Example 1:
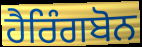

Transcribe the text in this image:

ਹੈਰਿੰਗਬੋਨ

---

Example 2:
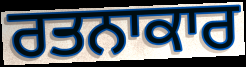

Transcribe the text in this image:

ਰਤਨਾਕਾਰ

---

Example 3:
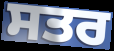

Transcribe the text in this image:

ਸਤਰ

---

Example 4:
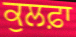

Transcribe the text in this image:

ਕੁਲਫ਼ਾ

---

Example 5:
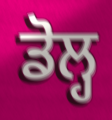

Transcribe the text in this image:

ਡੋਲ੍ਹ